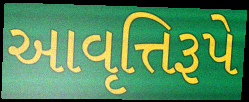
આવૃત્તિરૂપે